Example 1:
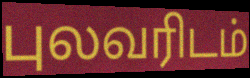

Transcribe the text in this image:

புலவரிடம்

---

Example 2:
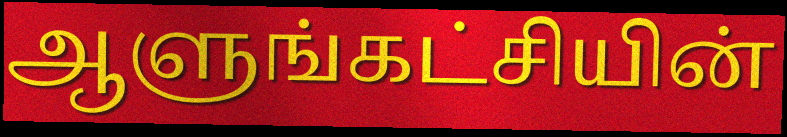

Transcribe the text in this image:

ஆளுங்கட்சியின்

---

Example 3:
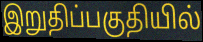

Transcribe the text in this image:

இறுதிப்பகுதியில்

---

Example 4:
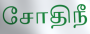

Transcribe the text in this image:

சோதிநீ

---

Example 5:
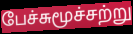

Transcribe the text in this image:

பேச்சுமூச்சற்று